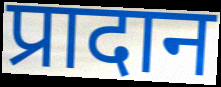
प्रादान